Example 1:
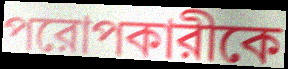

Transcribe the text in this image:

পরোপকারীকে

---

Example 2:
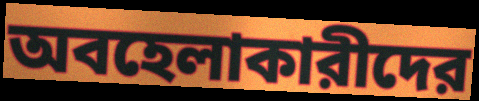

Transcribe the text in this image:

অবহেলাকারীদের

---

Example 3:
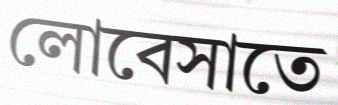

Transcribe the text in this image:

লোবেসাতে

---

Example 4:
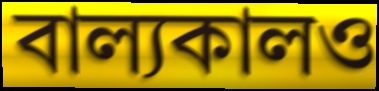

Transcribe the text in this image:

বাল্যকালও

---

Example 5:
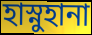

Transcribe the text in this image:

হাস্নুহানা